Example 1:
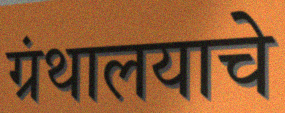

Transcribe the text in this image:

ग्रंथालयाचे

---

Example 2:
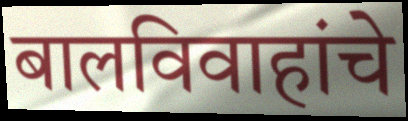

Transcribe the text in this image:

बालविवाहांचे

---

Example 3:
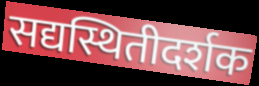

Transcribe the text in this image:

सद्यस्थितीदर्शक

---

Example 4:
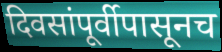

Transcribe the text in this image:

दिवसांपूर्वीपासूनच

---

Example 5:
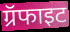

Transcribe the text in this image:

ग्रॅफाइट